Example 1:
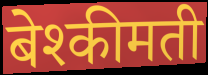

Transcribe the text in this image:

बेश्कीमती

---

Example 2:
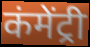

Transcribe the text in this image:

कंमेंट्री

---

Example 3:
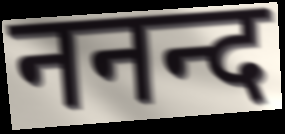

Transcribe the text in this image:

ननन्द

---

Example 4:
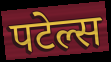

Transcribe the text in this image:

पटेल्स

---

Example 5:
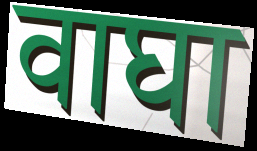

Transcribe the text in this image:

वाघा